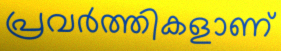
പ്രവർത്തികളാണ്